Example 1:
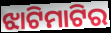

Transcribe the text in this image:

ଝାଟିମାଟିର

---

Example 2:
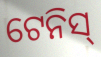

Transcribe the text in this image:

ଟେନିସ୍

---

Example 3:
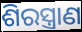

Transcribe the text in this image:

ଶିରସ୍ତ୍ରାଣ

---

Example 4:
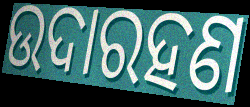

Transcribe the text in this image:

ଉଦାରହଣ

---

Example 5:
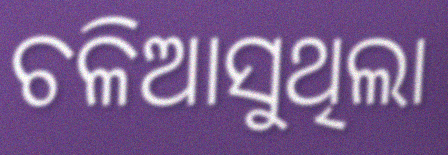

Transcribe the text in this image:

ଚଳିଆସୁଥିଲା